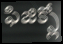
ఫిజిక్స్లో